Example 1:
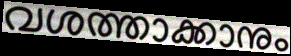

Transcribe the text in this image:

വശത്താക്കാനും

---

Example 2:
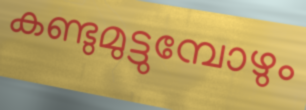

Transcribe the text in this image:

കണ്ടുമുട്ടുമ്പോഴും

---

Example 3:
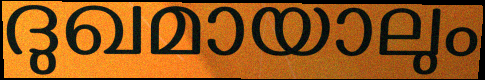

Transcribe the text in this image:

ദുഖമായാലും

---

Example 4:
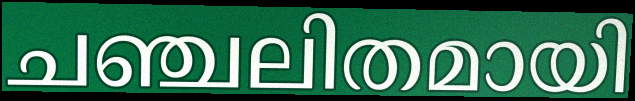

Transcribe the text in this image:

ചഞ്ചലിതമായി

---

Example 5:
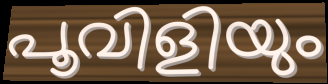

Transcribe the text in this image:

പൂവിളിയും